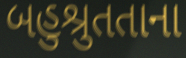
બહુશ્રુતતાના